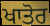
ਖਾਤੋਰ